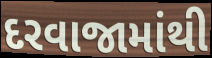
દરવાજામાંથી